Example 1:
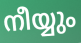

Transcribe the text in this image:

നീയ്യും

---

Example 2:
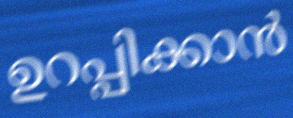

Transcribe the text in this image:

ഉറപ്പിക്കാൻ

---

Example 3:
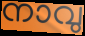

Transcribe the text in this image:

നാവു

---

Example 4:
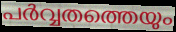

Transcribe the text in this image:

പർവ്വതത്തെയും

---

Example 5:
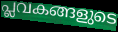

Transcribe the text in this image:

പ്ലവകങ്ങളുടെ